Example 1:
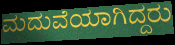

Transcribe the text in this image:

ಮದುವೆಯಾಗಿದ್ದರು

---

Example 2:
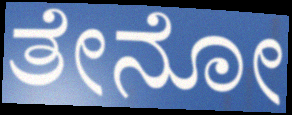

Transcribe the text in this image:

ತೇನೋ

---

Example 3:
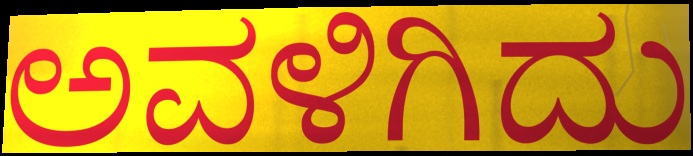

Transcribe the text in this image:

ಅವಳಿಗಿದು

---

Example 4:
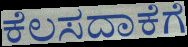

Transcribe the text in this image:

ಕೆಲಸದಾಕೆಗೆ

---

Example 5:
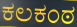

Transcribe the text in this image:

ಕಲಕಂಠ